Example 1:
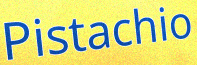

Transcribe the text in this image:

Pistachio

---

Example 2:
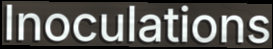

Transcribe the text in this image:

Inoculations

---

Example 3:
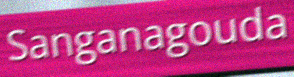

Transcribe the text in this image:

Sanganagouda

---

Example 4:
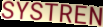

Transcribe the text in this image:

SYSTREN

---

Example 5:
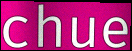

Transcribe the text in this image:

chue